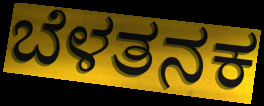
ಬೆಳತನಕ